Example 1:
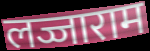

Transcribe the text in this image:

लज्जाराम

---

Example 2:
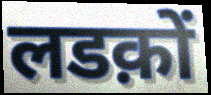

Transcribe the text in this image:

लडक़ों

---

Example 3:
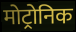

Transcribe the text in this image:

मोट्रोनिक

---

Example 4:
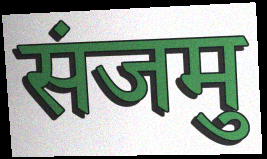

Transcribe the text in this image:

संजमु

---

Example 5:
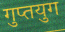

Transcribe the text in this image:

गुप्तयुग